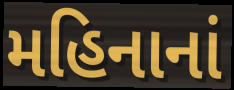
મહિનાનાં